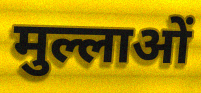
मुल्लाओं